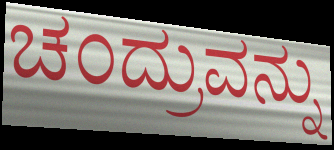
ಚಂದ್ರುವನ್ನು